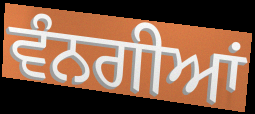
ਵੰਨਗੀਆਂ